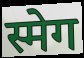
स्मेग